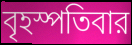
বৃহস্পতিবার